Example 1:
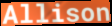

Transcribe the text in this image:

Allison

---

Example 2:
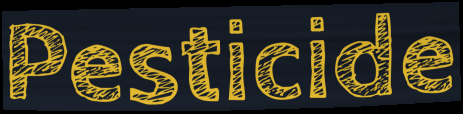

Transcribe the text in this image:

Pesticide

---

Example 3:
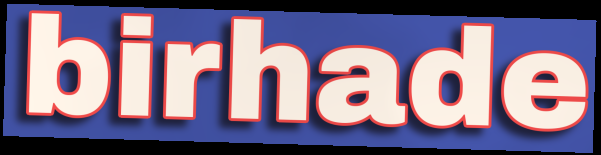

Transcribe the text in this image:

birhade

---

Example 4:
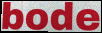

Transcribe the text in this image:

bode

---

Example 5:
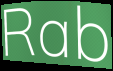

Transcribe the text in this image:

Rab